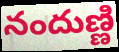
నందుణ్ణి